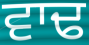
ਵਾਢ